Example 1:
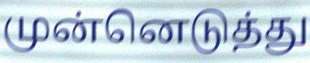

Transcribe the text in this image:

முன்னெடுத்து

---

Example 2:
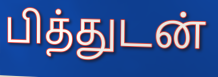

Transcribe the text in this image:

பித்துடன்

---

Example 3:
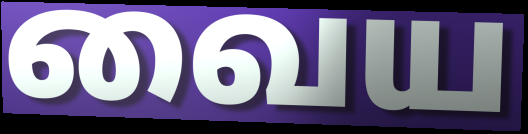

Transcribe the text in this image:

வைய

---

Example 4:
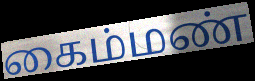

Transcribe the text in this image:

கைம்மண்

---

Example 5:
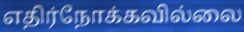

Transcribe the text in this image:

எதிர்நோக்கவில்லை